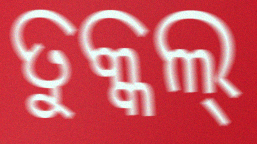
ତୁକ୍କଲ୍